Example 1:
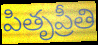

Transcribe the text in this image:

పితృప్రీతి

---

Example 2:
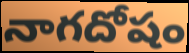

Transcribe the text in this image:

నాగదోషం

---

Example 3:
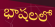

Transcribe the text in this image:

భాషలలో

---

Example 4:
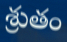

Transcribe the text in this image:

శ్రుతం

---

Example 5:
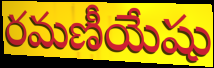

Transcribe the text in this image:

రమణీయేషు